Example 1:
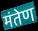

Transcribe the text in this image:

मंतेण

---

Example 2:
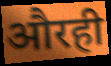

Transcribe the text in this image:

औरही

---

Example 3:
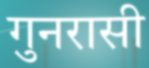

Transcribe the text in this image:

गुनरासी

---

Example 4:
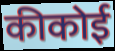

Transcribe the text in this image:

कीकोई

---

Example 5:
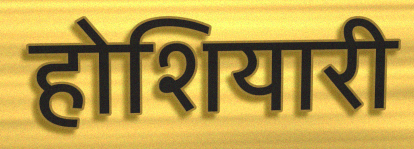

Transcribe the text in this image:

होशियारी